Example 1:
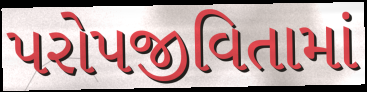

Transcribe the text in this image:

પરોપજીવિતામાં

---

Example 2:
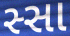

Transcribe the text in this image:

સ્સા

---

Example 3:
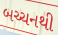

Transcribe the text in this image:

બચ્ચનથી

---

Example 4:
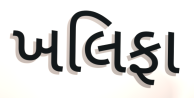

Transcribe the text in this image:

ખલિફા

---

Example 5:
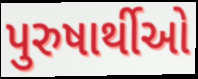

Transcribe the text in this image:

પુરુષાર્થીઓ